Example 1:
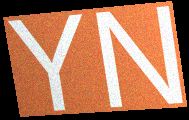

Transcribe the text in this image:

YN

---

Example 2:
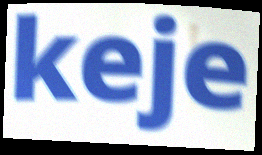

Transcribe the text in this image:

keje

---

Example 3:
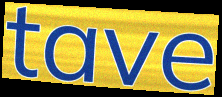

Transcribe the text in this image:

tave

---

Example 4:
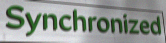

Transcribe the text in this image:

Synchronized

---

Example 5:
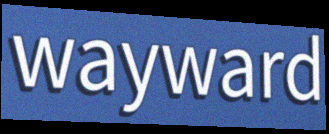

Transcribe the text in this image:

wayward